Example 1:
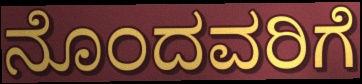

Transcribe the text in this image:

ನೊಂದವರಿಗೆ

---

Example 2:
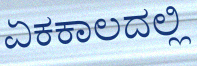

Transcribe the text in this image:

ಏಕಕಾಲದಲ್ಲಿ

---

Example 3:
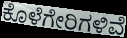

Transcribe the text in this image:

ಕೊಳೆಗೇರಿಗಳಿವೆ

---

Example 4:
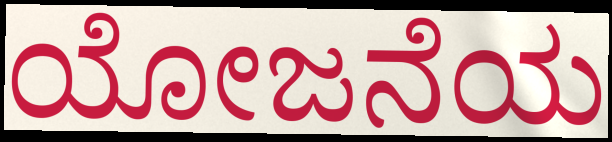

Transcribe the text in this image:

ಯೋಜನೆಯ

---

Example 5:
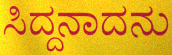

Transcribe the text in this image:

ಸಿದ್ದನಾದನು